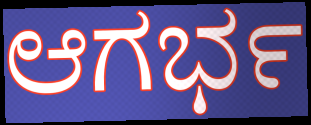
ಆಗರ್ಭ